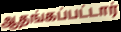
ஆதங்கப்பட்டார்